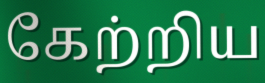
கேற்றிய